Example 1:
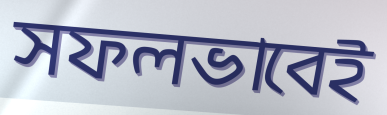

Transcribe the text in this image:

সফলভাবেই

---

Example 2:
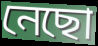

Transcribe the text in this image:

নেছো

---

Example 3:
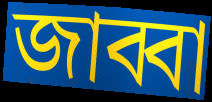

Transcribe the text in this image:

জাব্বা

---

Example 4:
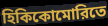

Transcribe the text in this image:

হিকিকোমোরিতে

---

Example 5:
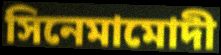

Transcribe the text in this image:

সিনেমামোদী